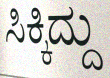
ಸಿಕ್ಕಿದ್ದು